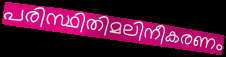
പരിസ്ഥിതിമലിനീകരണം